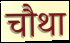
चौथा